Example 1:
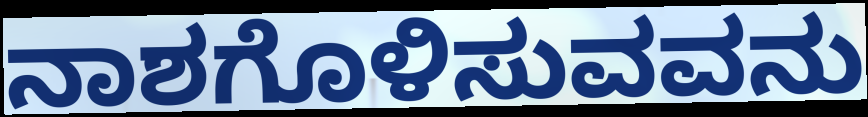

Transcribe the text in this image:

ನಾಶಗೊಳಿಸುವವನು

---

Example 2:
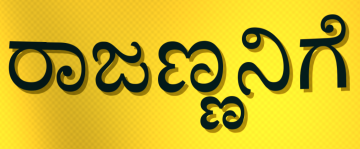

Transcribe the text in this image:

ರಾಜಣ್ಣನಿಗೆ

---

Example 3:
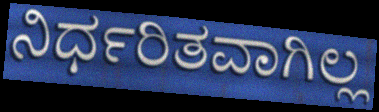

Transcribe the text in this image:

ನಿರ್ಧರಿತವಾಗಿಲ್ಲ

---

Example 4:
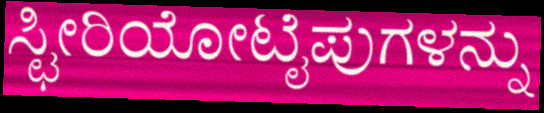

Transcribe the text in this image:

ಸ್ಟೀರಿಯೋಟೈಪುಗಳನ್ನು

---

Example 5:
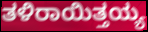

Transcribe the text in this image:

ತಳಿರಾಯಿತ್ತಯ್ಯ